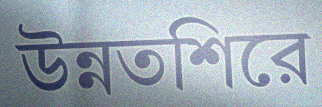
উন্নতশিরে